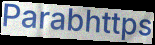
Parabhttps